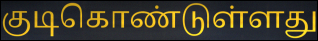
குடிகொண்டுள்ளது